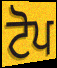
ਟੋਪ